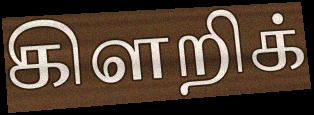
கிளறிக்